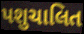
પશુચાલિત